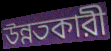
উন্নতকারী